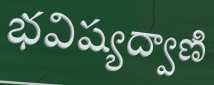
భవిష్యద్వాణి